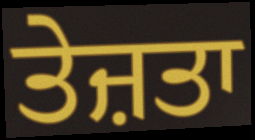
ਤੇਜ਼ਤਾ